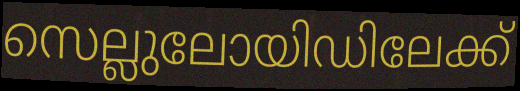
സെല്ലുലോയിഡിലേക്ക്